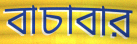
বাচাবার